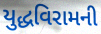
યુદ્ધવિરામની